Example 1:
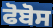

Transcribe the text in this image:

ਫੋਬੋਸ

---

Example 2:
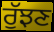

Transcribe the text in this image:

ਰੁੱਝਣ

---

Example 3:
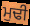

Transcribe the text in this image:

ਮੁਢੀ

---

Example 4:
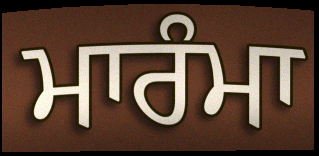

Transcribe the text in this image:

ਮਾਰੰਮਾ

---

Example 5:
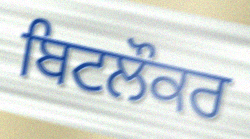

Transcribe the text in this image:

ਬਿਟਲੌਕਰ